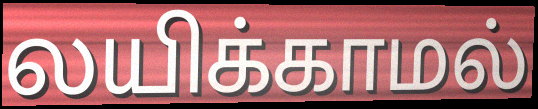
லயிக்காமல்